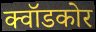
क्वॉडकोर